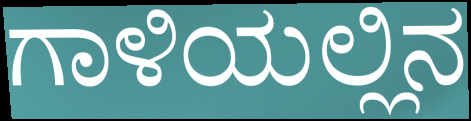
ಗಾಳಿಯಲ್ಲಿನ